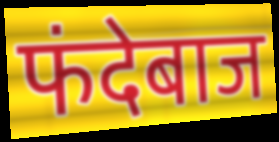
फंदेबाज